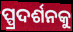
ପ୍ପ୍ରଦର୍ଶନକୁ